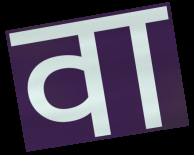
वा